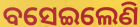
ବସେଇଲେଣି